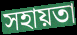
সহায়তা